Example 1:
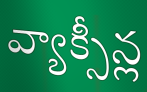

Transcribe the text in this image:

వ్యాక్సీన్ల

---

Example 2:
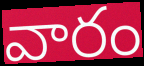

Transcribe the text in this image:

వారం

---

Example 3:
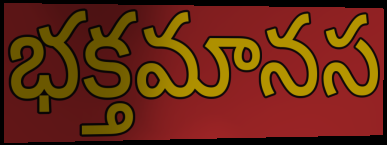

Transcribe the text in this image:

భక్తమానస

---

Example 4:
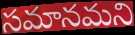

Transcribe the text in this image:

సమానమని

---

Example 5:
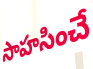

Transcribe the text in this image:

సాహసించే